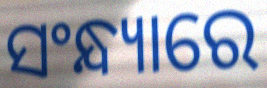
ସଂନ୍ଧ୍ଯାରେ